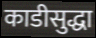
काडीसुद्धा